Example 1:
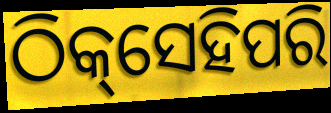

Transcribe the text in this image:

ଠିକ୍‌ସେହିପରି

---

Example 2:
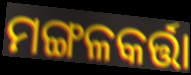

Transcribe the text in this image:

ମଙ୍ଗଳକର୍ତ୍ତା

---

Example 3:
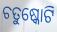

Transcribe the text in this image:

ଚତୁଷ୍କୋଟି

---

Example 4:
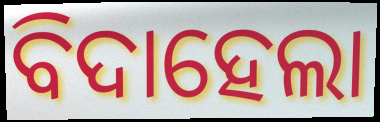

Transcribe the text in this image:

ବିଦାହେଲା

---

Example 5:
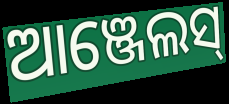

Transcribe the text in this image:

ଆଞ୍ଜେଲସ୍